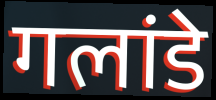
गलांडे